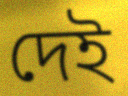
দেই